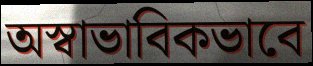
অস্বাভাবিকভাবে